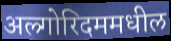
अल्गोरिदममधील